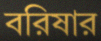
বরিষার